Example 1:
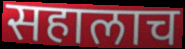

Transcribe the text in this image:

सहालाच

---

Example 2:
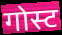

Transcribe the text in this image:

गोस्ट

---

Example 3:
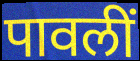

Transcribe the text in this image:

पावलीं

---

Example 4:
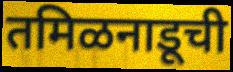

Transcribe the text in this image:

तमिळनाडूची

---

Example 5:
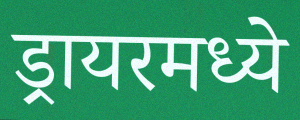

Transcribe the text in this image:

ड्रायरमध्ये